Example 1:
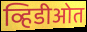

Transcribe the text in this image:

व्हिडीओत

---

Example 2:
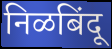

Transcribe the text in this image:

निळबिंदू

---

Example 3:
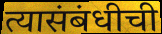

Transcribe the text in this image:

त्यासंबंधीची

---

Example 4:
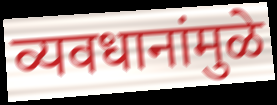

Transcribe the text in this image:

व्यवधानांमुळे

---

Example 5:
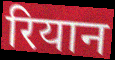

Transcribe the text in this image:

रियान